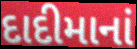
દાદીમાનાં